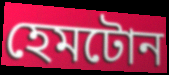
হেমটোন